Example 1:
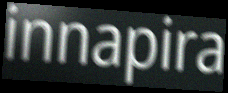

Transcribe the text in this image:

innapira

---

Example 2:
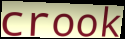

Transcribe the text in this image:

crook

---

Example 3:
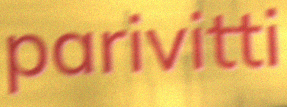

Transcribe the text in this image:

parivitti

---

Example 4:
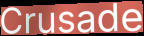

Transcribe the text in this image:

Crusade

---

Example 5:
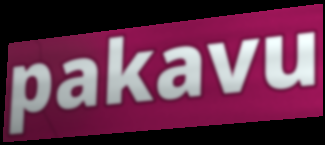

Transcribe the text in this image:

pakavu